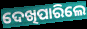
ଦେଖିପାରିଲେ